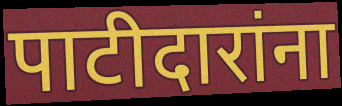
पाटीदारांना